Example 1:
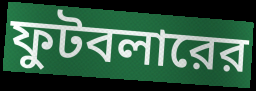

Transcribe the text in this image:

ফুটবলারের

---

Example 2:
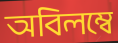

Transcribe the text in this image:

অবিলম্বে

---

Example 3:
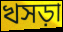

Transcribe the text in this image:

খসড়া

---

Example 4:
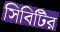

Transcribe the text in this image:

সিবিটির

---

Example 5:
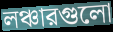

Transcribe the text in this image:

লঞ্চারগুলো